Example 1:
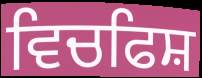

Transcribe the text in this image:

ਵਿਚਫਿਸ਼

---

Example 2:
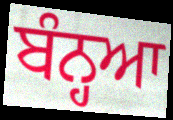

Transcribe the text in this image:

ਬੰਨ੍ਹਆ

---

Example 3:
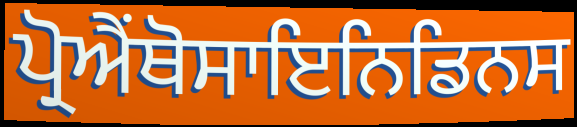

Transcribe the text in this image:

ਪ੍ਰੋਐਂਥੋਸਾਇਨਿਡਿਨਸ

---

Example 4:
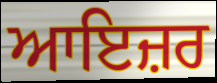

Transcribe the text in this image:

ਆਇਜ਼ਰ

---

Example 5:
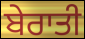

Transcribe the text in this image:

ਬੇਰਾਤੀ